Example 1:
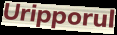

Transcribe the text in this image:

Uripporul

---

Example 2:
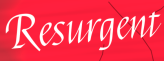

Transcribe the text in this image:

Resurgent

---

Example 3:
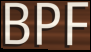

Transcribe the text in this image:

BPF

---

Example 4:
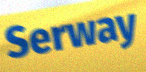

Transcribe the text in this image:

Serway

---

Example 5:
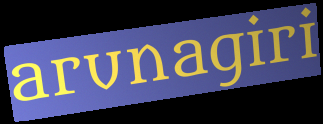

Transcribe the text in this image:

arunagiri